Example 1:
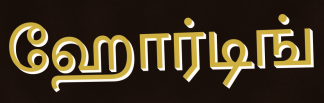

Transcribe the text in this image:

ஹோர்டிங்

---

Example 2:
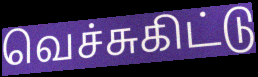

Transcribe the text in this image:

வெச்சுகிட்டு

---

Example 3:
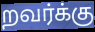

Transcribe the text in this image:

றவர்க்கு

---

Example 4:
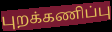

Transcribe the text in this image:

புறக்கணிப்பு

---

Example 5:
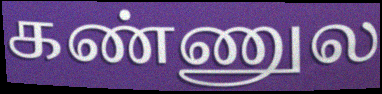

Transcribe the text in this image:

கண்ணுல